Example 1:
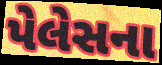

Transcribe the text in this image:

પેલેસના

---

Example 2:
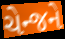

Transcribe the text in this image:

ચેન્જને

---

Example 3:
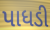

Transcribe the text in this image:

પાધડી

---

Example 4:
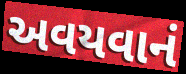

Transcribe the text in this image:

અવયવાનં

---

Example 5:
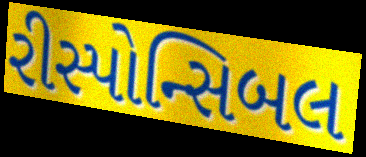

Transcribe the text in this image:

રીસ્પોન્સિબલ